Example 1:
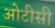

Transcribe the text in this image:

ओटीसी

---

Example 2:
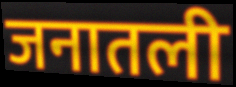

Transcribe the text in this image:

जनातली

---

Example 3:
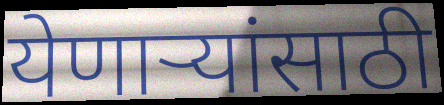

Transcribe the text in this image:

येणाऱ्यांसाठी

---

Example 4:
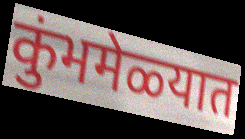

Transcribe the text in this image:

कुंभमेळ्यात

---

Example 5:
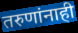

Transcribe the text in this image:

तरुणांनाही